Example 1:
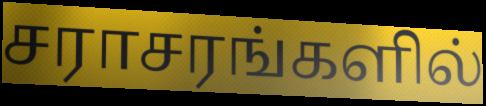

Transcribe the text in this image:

சராசரங்களில்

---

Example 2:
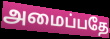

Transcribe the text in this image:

அமைப்பதே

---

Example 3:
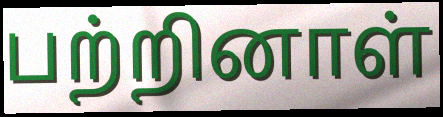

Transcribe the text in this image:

பற்றினாள்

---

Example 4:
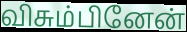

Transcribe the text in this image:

விசும்பினேன்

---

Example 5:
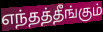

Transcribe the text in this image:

எந்தத்தீங்கும்